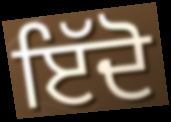
ਇੱਦੋ